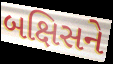
બક્ષિસને